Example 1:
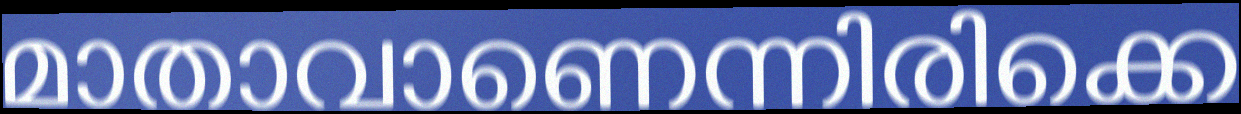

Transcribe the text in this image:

മാതാവാണെന്നിരിക്കെ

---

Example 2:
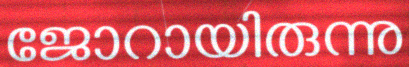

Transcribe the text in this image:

ജോറായിരുന്നു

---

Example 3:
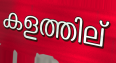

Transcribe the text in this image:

കളത്തില്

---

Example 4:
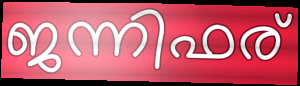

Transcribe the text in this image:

ജന്നിഫര്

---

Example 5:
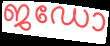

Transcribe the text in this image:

ജഡോ